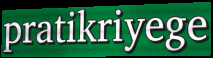
pratikriyege